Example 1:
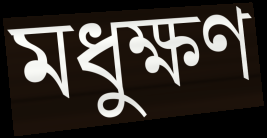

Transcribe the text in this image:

মধুক্ষণ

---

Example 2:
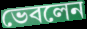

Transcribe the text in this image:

ভেবলেন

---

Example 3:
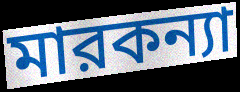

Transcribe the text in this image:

মারকন্যা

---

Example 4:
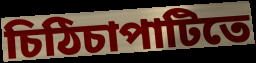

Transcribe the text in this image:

চিঠিচাপাটিতে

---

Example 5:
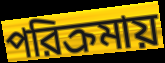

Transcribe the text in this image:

পরিক্রমায়